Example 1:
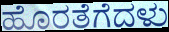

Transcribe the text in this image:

ಹೊರತೆಗೆದಳು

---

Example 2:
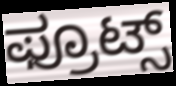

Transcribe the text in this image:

ಫ್ರೂಟ್ಸ್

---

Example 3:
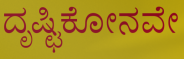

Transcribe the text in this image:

ದೃಷ್ಟಿಕೋನವೇ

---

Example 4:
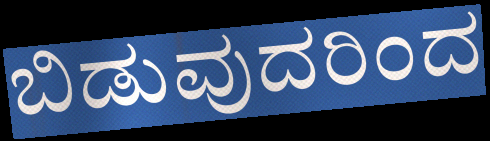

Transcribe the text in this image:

ಬಿಡುವುದರಿಂದ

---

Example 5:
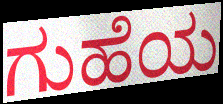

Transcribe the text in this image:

ಗುಹೆಯ